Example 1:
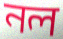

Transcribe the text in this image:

নল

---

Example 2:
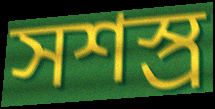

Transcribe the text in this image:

সশস্ত্ৰ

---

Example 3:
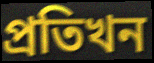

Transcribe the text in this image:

প্ৰতিখন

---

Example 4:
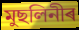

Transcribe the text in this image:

মুছলিনীৰ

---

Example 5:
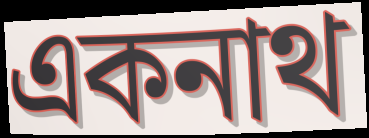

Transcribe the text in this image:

একনাথ